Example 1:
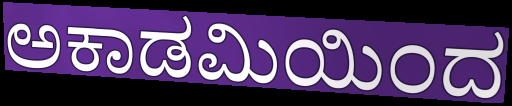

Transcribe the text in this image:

ಅಕಾಡಮಿಯಿಂದ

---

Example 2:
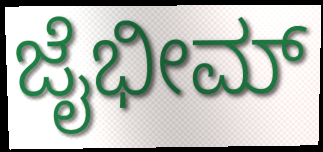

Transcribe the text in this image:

ಜೈಭೀಮ್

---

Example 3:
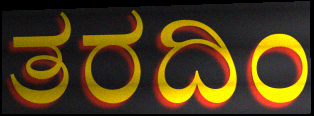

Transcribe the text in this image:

ತರದಿಂ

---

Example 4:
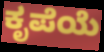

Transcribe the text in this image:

ಕೃಪೆಯೆ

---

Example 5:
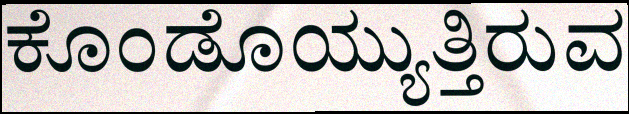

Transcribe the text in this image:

ಕೊಂಡೊಯ್ಯುತ್ತಿರುವ